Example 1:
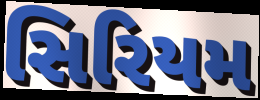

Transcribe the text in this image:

સિરિયમ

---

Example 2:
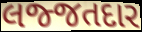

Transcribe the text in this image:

લજ્જતદાર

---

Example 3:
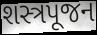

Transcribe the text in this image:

શસ્ત્રપૂજન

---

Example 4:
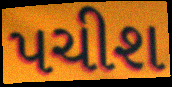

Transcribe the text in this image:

પચીશ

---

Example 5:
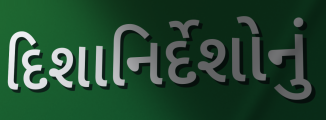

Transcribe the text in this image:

દિશાનિર્દેશોનું